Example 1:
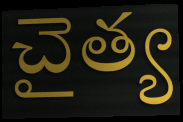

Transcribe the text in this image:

చైత్య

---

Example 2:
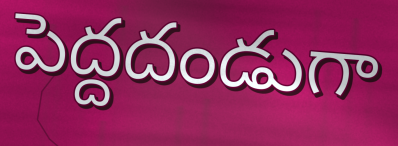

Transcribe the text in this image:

పెద్దదండుగా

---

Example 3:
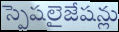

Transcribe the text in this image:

స్పెషలైజేషన్లు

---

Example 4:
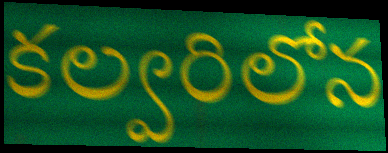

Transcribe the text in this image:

కల్వరిలోన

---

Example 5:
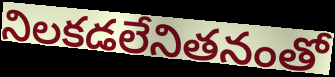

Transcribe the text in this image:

నిలకడలేనితనంతో